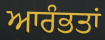
ਆਰੰਭਤਾਂ